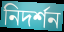
নিদর্শন